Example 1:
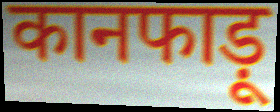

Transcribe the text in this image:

कानफाड़ू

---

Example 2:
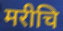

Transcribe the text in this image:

मरीचि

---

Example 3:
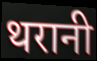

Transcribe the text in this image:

थरानी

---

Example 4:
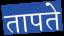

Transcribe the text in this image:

तापते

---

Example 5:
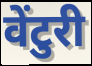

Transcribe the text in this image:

वेंटुरी